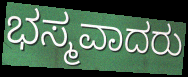
ಭಸ್ಮವಾದರು